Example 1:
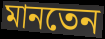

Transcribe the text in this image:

মানতেন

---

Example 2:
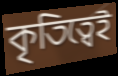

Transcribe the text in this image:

কৃতিত্বেই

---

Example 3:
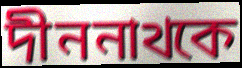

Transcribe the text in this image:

দীননাথকে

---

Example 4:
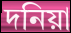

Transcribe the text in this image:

দনিয়া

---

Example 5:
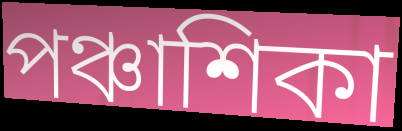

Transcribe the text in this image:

পঞ্চাশিকা